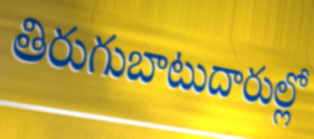
తిరుగుబాటుదారుల్లో